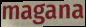
magana